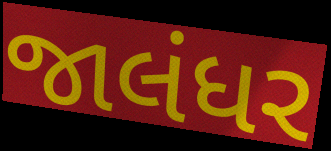
જાલંધર